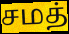
சமத்